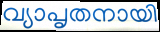
വ്യാപൃതനായി